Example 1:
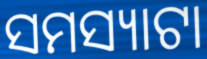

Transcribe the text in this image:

ସମସ୍ୟାଟା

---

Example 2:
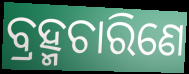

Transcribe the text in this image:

ବ୍ରହ୍ମଚାରିଣେ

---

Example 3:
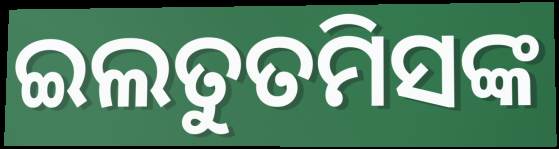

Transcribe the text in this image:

ଇଲତୁତମିସଙ୍କ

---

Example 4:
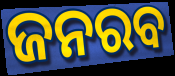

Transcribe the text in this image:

ଜନରବ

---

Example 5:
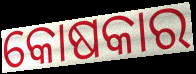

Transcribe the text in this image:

କୋଷକାର